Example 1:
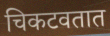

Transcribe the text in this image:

चिकटवतात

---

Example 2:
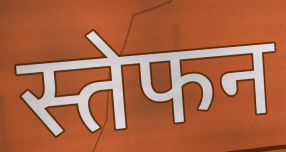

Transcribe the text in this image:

स्तेफन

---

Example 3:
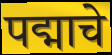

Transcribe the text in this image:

पद्माचे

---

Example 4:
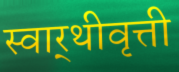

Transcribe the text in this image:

स्वार्थीवृत्ती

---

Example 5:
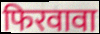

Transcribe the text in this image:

फिरवावा